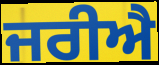
ਜਰੀਐ